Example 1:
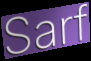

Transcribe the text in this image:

Sarf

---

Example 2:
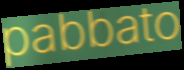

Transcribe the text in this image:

pabbato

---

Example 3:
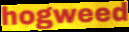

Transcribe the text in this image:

hogweed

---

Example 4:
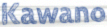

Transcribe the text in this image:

Kawano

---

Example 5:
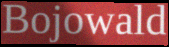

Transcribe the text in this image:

Bojowald